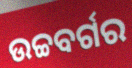
ଉଚ୍ଚବର୍ଗର